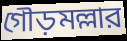
গৌড়মল্লার